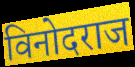
विनोदराज